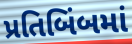
પ્રતિબિંબમાં